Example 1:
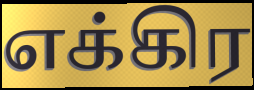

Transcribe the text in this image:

எக்கிர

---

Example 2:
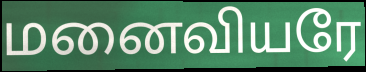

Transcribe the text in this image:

மனைவியரே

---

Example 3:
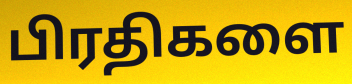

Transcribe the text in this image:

பிரதிகளை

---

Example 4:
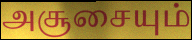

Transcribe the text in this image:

அசூசையும்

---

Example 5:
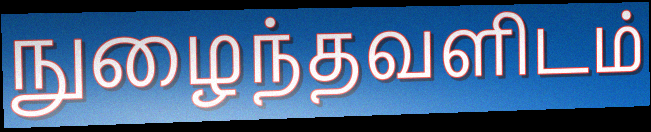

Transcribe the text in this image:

நுழைந்தவளிடம்